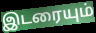
இடரையும்